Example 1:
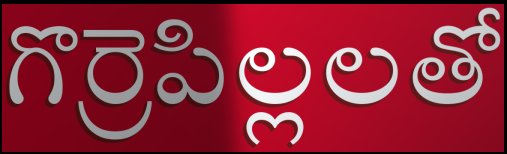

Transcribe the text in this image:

గొర్రెపిల్లలతో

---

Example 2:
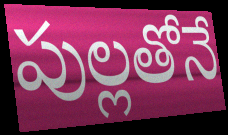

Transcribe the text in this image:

పుల్లతోనే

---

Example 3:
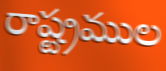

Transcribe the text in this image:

రాష్ట్రముల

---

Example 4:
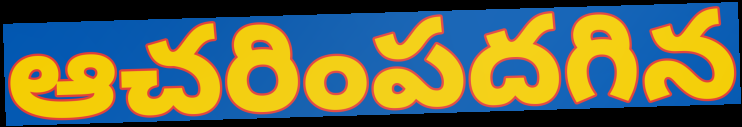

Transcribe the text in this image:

ఆచరింపదగిన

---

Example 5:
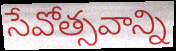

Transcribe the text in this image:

సేవోత్సవాన్ని